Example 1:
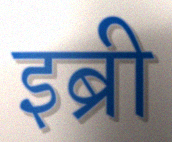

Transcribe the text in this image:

इब्री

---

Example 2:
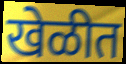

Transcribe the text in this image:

खेळीत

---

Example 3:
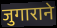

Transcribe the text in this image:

जुगाराने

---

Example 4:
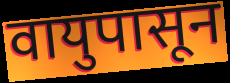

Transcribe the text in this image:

वायुपासून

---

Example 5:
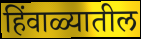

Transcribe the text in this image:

हिंवाळ्यातील